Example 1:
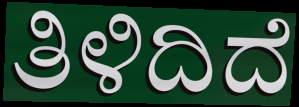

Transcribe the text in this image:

ತಿಳಿದಿದೆ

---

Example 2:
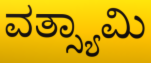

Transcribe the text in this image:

ವತ್ಸ್ಯಾಮಿ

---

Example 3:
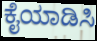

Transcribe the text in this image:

ಕೈಯಾಡಿಸಿ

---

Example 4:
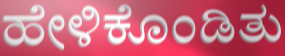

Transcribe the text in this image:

ಹೇಳಿಕೊಂಡಿತು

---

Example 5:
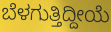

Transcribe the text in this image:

ಬೆಳಗುತ್ತಿದ್ದೀಯೆ